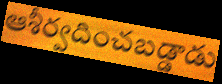
ఆశీర్వదించబడ్డాడు